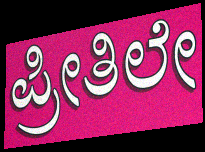
ಪ್ರೀತಿಲೇ